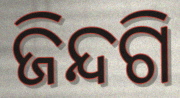
ଜିନ୍ଦଗି